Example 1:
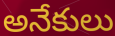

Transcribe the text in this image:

అనేకులు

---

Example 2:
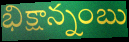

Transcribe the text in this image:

భిక్షాన్నంబు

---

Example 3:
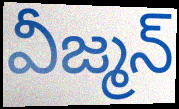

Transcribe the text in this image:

వీజ్మన్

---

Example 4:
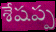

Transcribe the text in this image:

శేషప్ప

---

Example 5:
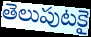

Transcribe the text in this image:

తెలుపుటకై